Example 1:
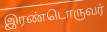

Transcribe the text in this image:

இரண்டொருவர்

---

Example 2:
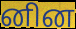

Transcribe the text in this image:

னின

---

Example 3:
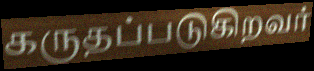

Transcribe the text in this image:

கருதப்படுகிறவர்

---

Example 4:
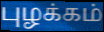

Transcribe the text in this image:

புழக்கம்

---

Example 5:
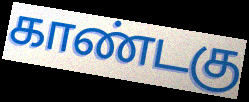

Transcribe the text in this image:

காண்டகு